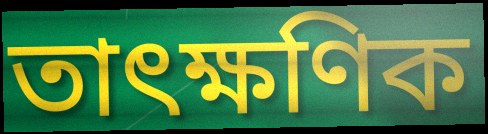
তাৎক্ষণিক